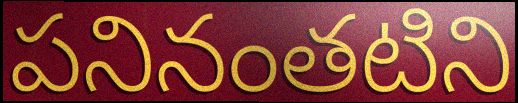
పనినంతటిని